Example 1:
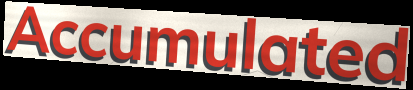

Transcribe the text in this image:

Accumulated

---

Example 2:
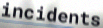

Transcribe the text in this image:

incidents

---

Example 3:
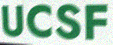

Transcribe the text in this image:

UCSF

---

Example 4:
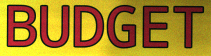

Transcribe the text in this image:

BUDGET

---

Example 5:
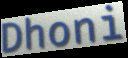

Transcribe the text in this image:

Dhoni